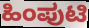
ಹಿಂಪುಟಿ